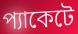
প্যাকেটে